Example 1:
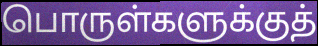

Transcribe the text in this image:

பொருள்களுக்குத்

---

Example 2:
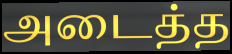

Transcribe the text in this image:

அடைத்த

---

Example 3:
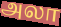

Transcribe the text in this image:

அலா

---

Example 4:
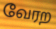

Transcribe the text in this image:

வேரற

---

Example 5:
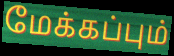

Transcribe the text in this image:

மேக்கப்பும்